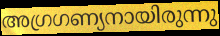
അഗ്രഗണ്യനായിരുന്നു